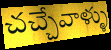
చచ్చేవాళ్ళు